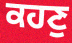
ਕਹਣੁ